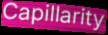
Capillarity